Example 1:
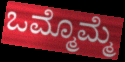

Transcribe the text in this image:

ಒಮ್ಮೊಮ್ಮೆ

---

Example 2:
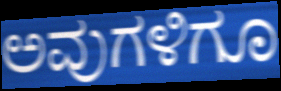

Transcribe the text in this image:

ಅವುಗಳಿಗೂ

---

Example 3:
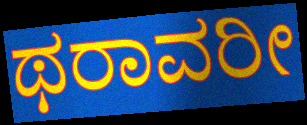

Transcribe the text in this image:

ಥರಾವರೀ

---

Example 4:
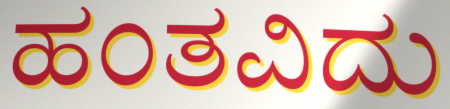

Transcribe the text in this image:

ಹಂತವಿದು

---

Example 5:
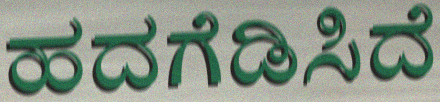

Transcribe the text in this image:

ಹದಗೆಡಿಸಿದೆ